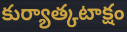
కుర్యాత్కటాక్షం